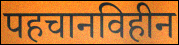
पहचानविहीन